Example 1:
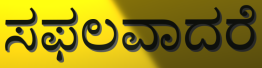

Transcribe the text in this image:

ಸಫಲವಾದರೆ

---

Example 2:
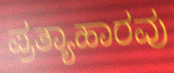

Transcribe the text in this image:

ಪ್ರತ್ಯಾಹಾರವು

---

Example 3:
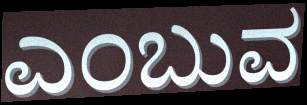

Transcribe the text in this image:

ಎಂಬುವ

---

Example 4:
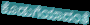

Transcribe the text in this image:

ಕೊಡುಗೆಯಾದಂತೆ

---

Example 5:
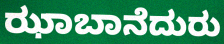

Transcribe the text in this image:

ಝಾಬಾನೆದುರು